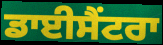
ਡਾਈਸੈਂਟਰਾ